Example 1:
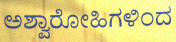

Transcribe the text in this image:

ಅಶ್ವಾರೋಹಿಗಳಿಂದ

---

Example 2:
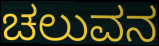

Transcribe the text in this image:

ಚಲುವನ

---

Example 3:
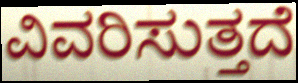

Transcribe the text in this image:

ವಿವರಿಸುತ್ತದೆ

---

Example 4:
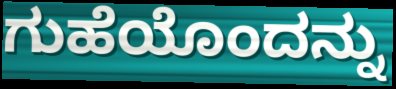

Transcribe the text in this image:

ಗುಹೆಯೊಂದನ್ನು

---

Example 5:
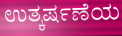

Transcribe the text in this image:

ಉತ್ಕರ್ಷಣೆಯ